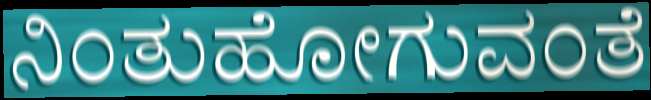
ನಿಂತುಹೋಗುವಂತೆ